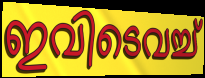
ഇവിടെവച്ച്